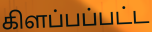
கிளப்பப்பட்ட